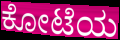
ಕೋಟೆಯ